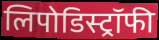
लिपोडिस्ट्रॉफी